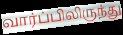
வார்ப்பிலிருந்து